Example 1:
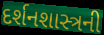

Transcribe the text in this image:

દર્શનશાસ્ત્રની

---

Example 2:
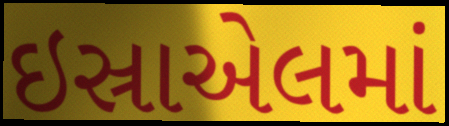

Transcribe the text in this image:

ઇસ્રાએલમાં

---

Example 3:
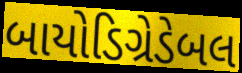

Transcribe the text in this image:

બાયોડિગ્રેડેબલ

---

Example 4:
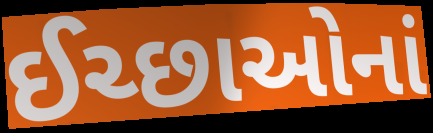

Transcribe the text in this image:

ઈચ્છાઓનાં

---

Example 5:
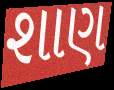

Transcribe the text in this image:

શાણ